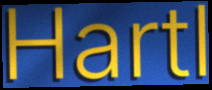
Hartl